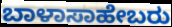
ಬಾಳಾಸಾಹೇಬರು